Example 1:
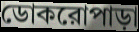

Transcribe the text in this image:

ডোকরোপাড়া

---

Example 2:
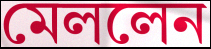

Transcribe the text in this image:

মেললেন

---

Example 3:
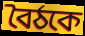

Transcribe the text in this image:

বৈঠকে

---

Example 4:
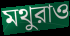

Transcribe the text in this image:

মথুরাও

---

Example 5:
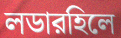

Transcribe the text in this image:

লডারহিলে